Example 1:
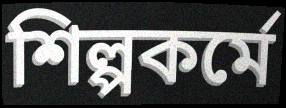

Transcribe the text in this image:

শিল্পকর্মে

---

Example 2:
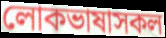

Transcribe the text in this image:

লোকভাষাসকল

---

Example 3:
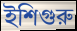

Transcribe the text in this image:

ইশিগুরু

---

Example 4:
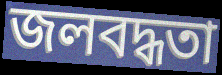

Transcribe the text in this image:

জলবদ্ধতা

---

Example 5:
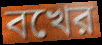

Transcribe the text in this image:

বখের